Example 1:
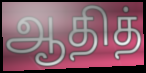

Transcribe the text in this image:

ஆதித்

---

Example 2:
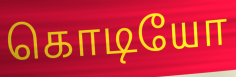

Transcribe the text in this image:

கொடியோ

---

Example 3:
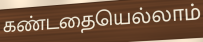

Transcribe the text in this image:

கண்டதையெல்லாம்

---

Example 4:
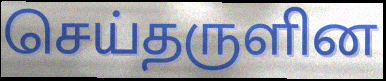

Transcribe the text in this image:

செய்தருளின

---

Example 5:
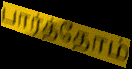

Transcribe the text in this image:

பார்த்தோம்